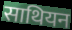
साथियन